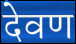
देवण